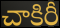
చాకిరీ